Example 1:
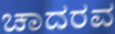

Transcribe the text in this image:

ಚಾದರವ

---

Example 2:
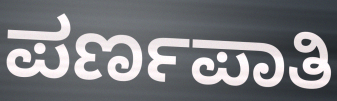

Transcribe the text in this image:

ಪರ್ಣಪಾತಿ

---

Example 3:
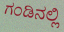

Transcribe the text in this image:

ಗಂಡಿನಲ್ಲಿ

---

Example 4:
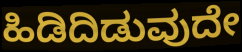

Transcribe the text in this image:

ಹಿಡಿದಿಡುವುದೇ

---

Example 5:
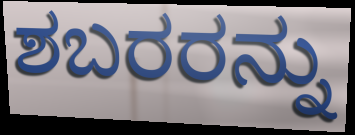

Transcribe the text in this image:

ಶಬರರನ್ನು